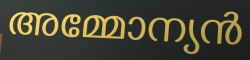
അമ്മോന്യൻ